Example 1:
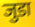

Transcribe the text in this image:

जुडा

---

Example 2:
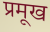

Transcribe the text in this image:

प्रमूख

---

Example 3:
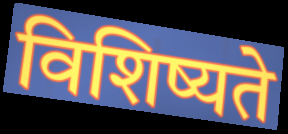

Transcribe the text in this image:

विशिष्यते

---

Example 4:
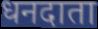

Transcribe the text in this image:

धनदाता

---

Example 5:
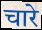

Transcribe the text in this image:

चारे